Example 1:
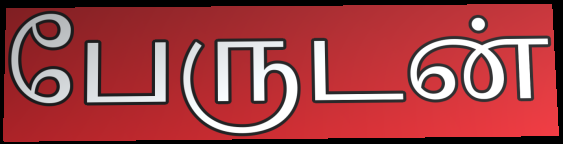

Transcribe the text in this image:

பேருடன்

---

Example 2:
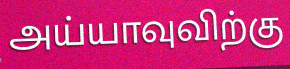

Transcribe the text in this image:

அய்யாவுவிற்கு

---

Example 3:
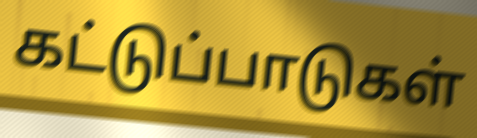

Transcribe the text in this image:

கட்டுப்பாடுகள்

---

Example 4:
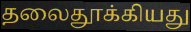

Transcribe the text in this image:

தலைதூக்கியது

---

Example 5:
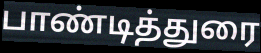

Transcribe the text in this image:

பாண்டித்துரை